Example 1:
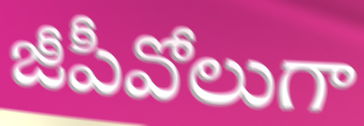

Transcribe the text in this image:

జీపీవోలుగా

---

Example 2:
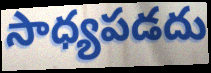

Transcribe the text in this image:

సాధ్యపడదు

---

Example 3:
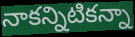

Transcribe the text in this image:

నాకన్నిటికన్నా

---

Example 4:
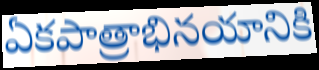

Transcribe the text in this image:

ఏకపాత్రాభినయానికి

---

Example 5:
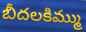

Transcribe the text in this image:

బీదలకిమ్ము